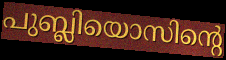
പുബ്ലിയൊസിന്റെ